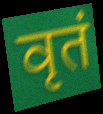
वृतं